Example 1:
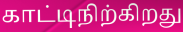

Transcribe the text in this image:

காட்டிநிற்கிறது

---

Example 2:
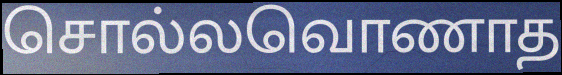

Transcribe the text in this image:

சொல்லவொணாத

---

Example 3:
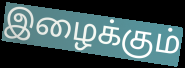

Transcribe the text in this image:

இழைக்கும்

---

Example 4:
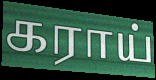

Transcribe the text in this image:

கராய்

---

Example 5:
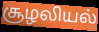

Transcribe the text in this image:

சூழலியல்